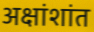
अक्षांशांत